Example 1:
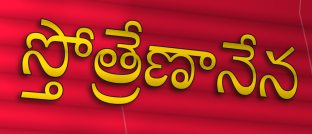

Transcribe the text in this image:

స్తోత్రేణానేన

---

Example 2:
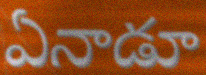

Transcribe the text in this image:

ఏనాడూ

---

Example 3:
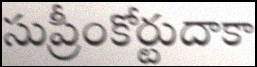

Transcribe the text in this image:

సుప్రీంకోర్టుదాకా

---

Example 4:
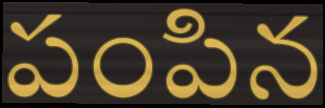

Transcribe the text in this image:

పంపిన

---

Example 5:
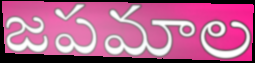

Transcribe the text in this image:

జపమాల